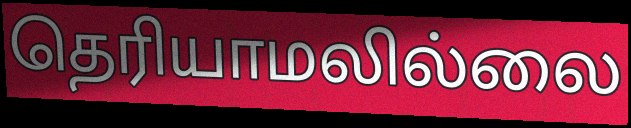
தெரியாமலில்லை